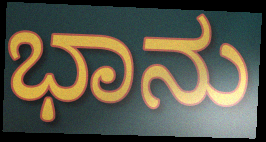
ಭಾನು